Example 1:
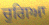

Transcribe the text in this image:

ਚੁਗਿਆ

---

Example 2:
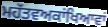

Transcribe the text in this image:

ਮਹੱਤਵਅਕਾਂਖਿਆਵਾਂ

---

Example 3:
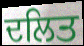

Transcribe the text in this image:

ਦਲਿਤ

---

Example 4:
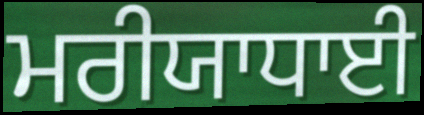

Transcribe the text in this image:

ਮਰੀਯਾਧਾਈ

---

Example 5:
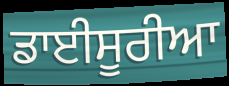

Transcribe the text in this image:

ਡਾਈਸੂਰੀਆ